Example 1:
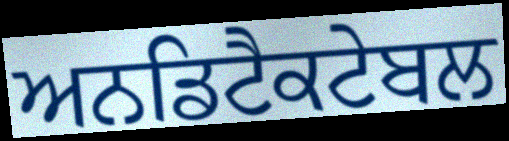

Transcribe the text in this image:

ਅਨਡਿਟੈਕਟੇਬਲ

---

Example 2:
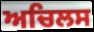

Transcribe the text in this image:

ਅਚਿਲਸ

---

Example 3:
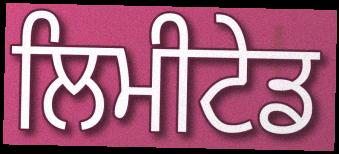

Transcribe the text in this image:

ਲਿਮੀਟੇਡ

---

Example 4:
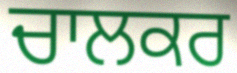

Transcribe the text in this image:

ਚਾਲਕਰ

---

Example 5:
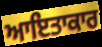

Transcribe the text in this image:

ਆਇਤਾਕਾਰ